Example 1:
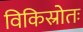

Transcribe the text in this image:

विकिस्रोतः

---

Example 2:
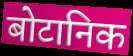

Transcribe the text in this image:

बोटानिक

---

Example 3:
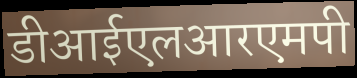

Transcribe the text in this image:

डीआईएलआरएमपी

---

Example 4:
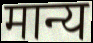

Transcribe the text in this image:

मान्य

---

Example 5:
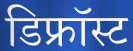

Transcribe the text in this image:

डिफ्रॉस्ट